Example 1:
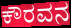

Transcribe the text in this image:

ಕೌರವನ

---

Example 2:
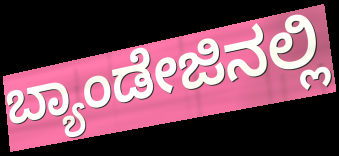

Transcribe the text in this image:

ಬ್ಯಾಂಡೇಜಿನಲ್ಲಿ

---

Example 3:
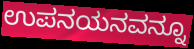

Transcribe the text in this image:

ಉಪನಯನವನ್ನೂ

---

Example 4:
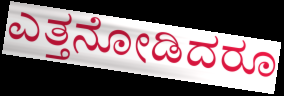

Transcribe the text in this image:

ಎತ್ತನೋಡಿದರೂ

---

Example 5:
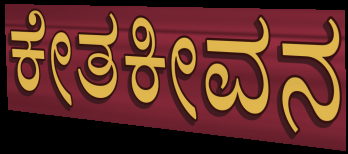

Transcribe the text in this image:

ಕೇತಕೀವನ